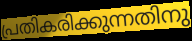
പ്രതികരിക്കുന്നതിനു